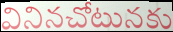
వినినచోటునకు